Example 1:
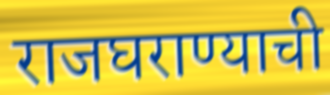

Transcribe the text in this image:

राजघराण्याची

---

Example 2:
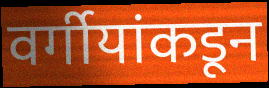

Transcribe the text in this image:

वर्गीयांकडून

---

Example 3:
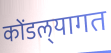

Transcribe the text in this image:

कोंडल्यागत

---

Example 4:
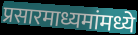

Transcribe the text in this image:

प्रसारमाध्यमांमध्ये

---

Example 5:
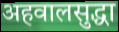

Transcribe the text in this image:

अहवालसुद्धा